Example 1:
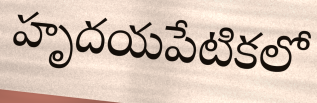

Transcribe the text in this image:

హృదయపేటికలో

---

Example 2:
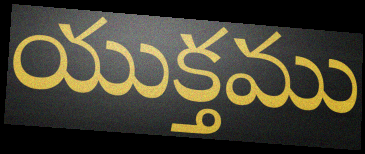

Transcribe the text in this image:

యుక్తము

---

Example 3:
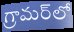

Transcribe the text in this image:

గ్రామర్‌లో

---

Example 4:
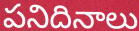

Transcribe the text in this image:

పనిదినాలు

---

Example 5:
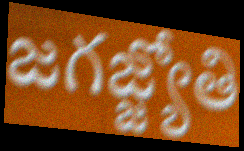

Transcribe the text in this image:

జగజ్జ్యోతి